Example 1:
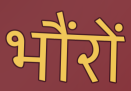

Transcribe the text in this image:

भौंरों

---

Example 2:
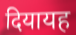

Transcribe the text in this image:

दियायह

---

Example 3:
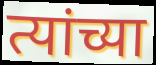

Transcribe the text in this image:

त्यांच्या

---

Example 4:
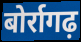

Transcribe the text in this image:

बोर्रागढ़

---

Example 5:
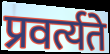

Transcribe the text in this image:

प्रवर्त्यते